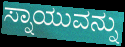
ಸ್ನಾಯುವನ್ನು